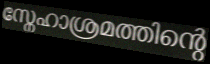
സ്നേഹാശ്രമത്തിന്റെ